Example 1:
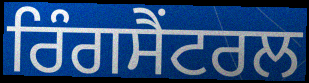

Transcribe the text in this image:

ਰਿੰਗਸੈਂਟਰਲ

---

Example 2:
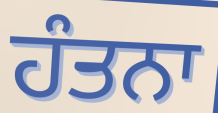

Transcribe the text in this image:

ਹੰਤਨਾ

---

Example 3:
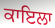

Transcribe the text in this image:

ਕਾਇਲਾ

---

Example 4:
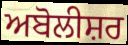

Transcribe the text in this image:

ਅਬੋਲੀਸ਼ਰ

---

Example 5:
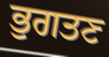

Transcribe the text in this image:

ਭੁਗਤਣ